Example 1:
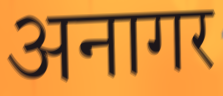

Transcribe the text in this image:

अनागर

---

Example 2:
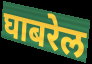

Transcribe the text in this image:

घाबरेल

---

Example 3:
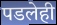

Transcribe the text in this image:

पडलेही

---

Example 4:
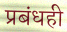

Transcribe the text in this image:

प्रबंधही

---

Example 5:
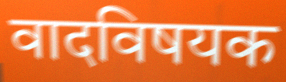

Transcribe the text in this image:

वादविषयक